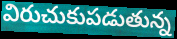
విరుచుకుపడుతున్న